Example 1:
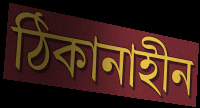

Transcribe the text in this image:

ঠিকানাহীন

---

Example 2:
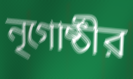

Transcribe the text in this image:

নৃগোষ্ঠীর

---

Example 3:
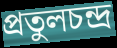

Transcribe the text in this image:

প্রতুলচন্দ্র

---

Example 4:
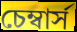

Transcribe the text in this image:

চেম্বার্স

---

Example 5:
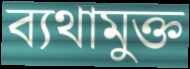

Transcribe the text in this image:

ব্যথামুক্ত